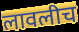
लावलीच